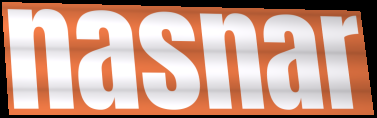
nasnar